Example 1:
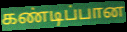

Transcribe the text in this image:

கண்டிப்பான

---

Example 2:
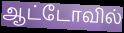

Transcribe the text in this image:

ஆட்டோவில்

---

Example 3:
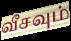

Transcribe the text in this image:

வீசவும்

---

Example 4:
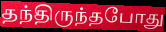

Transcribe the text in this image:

தந்திருந்தபோது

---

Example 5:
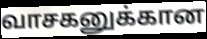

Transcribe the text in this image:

வாசகனுக்கான